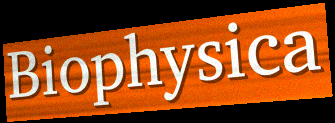
Biophysica